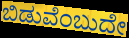
ಬಿಡುವೆಂಬುದೇ